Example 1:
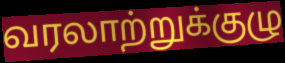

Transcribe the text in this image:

வரலாற்றுக்குழு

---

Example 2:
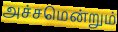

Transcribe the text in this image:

அச்சமென்றும்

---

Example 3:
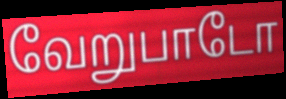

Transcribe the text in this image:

வேறுபாடோ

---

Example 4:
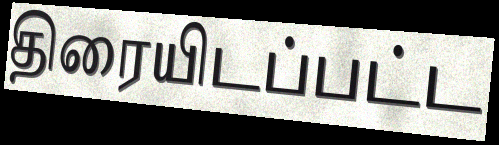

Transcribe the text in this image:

திரையிடப்பட்ட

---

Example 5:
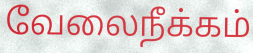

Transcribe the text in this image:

வேலைநீக்கம்